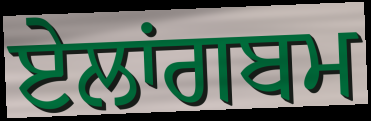
ਏਲਾਂਗਬਮ